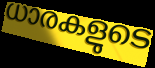
ധാരകളുടെ